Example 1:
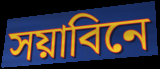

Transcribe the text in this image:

সয়াবিনে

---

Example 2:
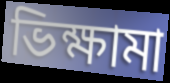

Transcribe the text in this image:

ভিক্ষামা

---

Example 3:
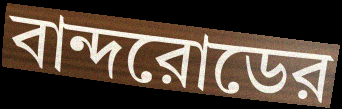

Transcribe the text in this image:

বান্দরোডের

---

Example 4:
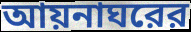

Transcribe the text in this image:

আয়নাঘরের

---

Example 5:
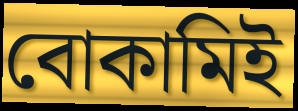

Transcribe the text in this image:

বোকামিই